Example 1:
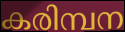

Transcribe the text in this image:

കരിമ്പന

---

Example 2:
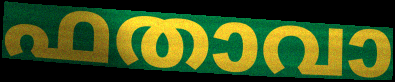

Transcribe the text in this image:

ഫതാവാ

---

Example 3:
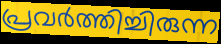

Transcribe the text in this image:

പ്രവർത്തിച്ചിരുന്ന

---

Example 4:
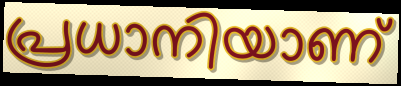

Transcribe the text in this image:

പ്രധാനിയാണ്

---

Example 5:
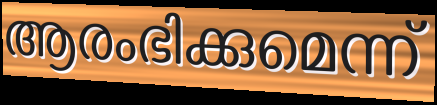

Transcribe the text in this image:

ആരംഭിക്കുമെന്ന്